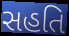
સહતિ